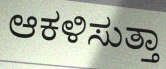
ಆಕಳಿಸುತ್ತಾ